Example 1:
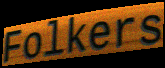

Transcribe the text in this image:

Folkers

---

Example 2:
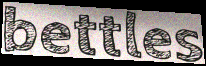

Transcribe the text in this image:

bettles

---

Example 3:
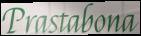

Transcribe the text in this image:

Prastabona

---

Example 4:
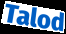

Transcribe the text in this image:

Talod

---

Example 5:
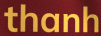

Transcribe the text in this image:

thanh